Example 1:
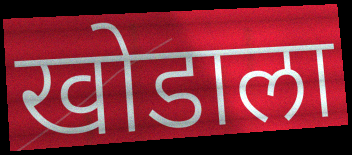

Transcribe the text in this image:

खोडाला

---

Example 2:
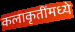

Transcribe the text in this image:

कलाकृतींमध्ये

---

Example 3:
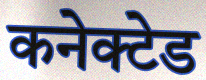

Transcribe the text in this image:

कनेक्टेड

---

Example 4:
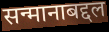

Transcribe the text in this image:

सन्मानाबद्दल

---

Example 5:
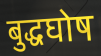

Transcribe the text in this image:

बुद्धघोष